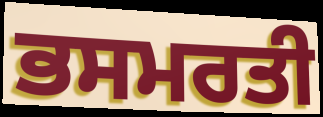
ਭਸਮਰਤੀ